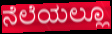
ನೆಲೆಯಲ್ಲೂ